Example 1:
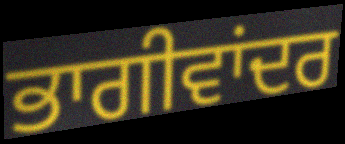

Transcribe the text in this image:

ਭਾਗੀਵਾਂਦਰ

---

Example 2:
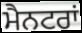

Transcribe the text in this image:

ਮੈਨਟਰਾਂ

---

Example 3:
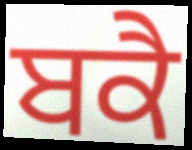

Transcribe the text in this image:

ਬਕੈ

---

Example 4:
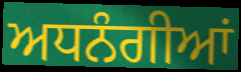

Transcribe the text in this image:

ਅਧਨੰਗੀਆਂ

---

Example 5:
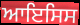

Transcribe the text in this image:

ਆਇਸਿਸ